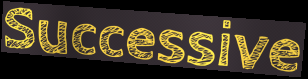
Successive